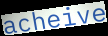
acheive